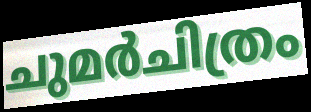
ചുമർചിത്രം